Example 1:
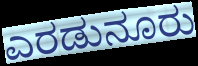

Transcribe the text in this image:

ಎರಡುನೂರು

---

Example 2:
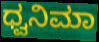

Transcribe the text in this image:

ಧ್ವನಿಮಾ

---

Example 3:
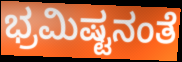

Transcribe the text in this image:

ಭ್ರಮಿಷ್ಟನಂತೆ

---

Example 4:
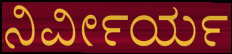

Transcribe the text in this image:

ನಿರ್ವೀರ್ಯ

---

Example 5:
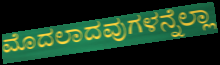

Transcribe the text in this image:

ಮೊದಲಾದವುಗಳನ್ನೆಲ್ಲಾ